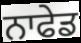
ਨਾਫੇਡ